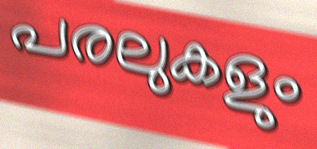
പരലുകളും